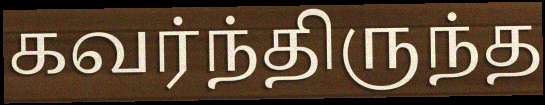
கவர்ந்திருந்த